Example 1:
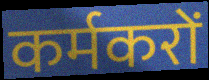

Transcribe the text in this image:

कर्मकरों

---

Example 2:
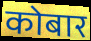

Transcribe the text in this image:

कोबार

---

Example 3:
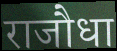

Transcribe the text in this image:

राजौधा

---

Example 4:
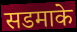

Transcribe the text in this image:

सडमाके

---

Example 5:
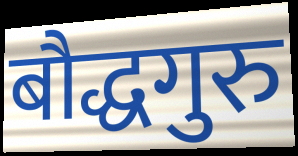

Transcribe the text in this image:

बौद्धगुरु